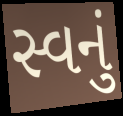
સ્વનું